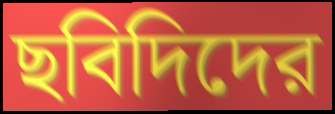
ছবিদিদের